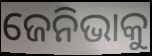
ଜେନିଭାକୁ